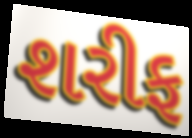
શરીફ